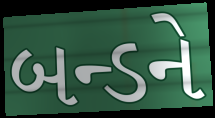
બન્ડને